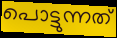
പൊട്ടുന്നത്